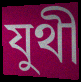
যুথী